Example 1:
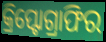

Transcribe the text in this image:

କ୍ରିପ୍ଟୋଗ୍ରାଫିର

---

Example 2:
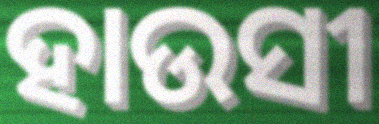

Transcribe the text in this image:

ହାଉସୀ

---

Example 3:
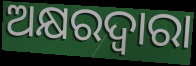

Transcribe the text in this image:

ଅକ୍ଷରଦ୍ଵାରା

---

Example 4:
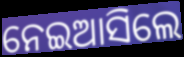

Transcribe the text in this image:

ନେଇଆସିଲେ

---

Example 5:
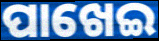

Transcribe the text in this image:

ପାଖେଇ